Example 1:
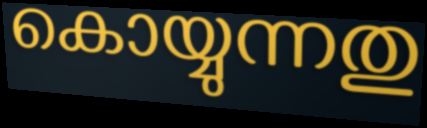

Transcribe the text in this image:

കൊയ്യുന്നതു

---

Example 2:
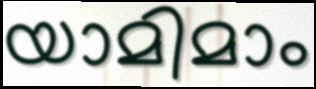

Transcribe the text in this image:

യാമിമാം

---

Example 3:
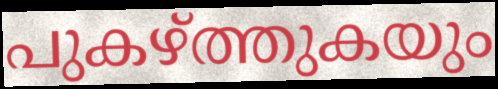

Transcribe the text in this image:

പുകഴ്ത്തുകയും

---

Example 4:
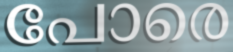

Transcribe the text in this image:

പോരെ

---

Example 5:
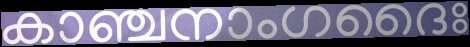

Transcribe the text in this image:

കാഞ്ചനാംഗദൈഃ